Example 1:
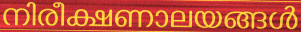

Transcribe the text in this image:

നിരീക്ഷണാലയങ്ങൾ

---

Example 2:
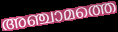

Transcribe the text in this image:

അഞ്ചാമത്തെ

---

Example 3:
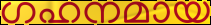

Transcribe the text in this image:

ഗഹനമായ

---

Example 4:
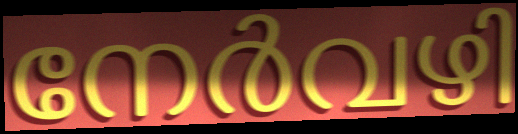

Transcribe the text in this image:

നേർവഴി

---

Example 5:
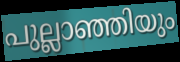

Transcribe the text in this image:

പുല്ലാഞ്ഞിയും